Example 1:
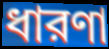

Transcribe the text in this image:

ধারণা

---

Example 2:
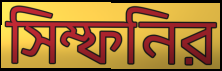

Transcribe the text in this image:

সিম্ফনির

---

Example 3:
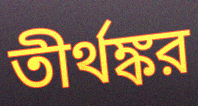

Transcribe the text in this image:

তীর্থঙ্কর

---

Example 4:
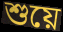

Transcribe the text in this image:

শুয়ে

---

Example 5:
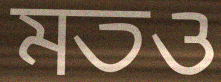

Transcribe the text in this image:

মতও